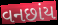
વનછાંય